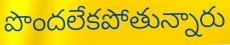
పొందలేకపోతున్నారు